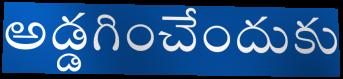
అడ్డగించేందుకు